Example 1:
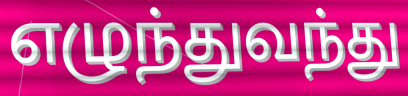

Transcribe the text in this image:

எழுந்துவந்து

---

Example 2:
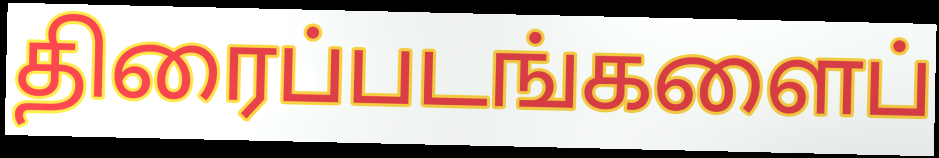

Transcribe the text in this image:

திரைப்படங்களைப்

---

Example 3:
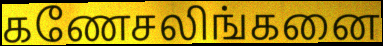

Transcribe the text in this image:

கணேசலிங்கனை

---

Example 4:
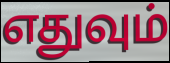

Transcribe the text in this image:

எதுவும்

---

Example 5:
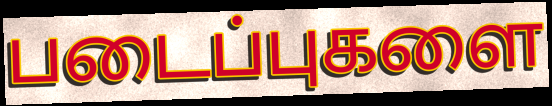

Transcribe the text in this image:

படைப்புகளை